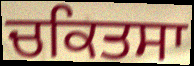
ਚਕਿਤਸਾ